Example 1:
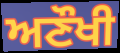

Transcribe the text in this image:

ਅਣੌਖੀ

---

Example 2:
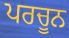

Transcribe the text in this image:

ਪਰਚੂਨ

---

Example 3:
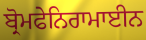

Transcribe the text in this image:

ਬ੍ਰੋਮਫੇਨਿਰਾਮਾਈਨ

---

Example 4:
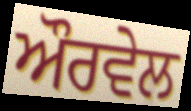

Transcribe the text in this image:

ਔਰਵੇਲ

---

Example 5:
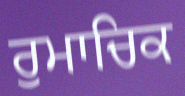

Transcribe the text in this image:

ਰੁਮਾਚਿਕ